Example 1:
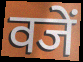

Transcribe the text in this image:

वजें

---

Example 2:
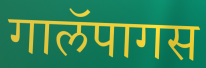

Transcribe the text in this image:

गालॅपागस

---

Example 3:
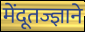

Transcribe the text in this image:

मेंदूतज्ज्ञाने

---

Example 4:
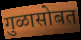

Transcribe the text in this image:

गुळासोबत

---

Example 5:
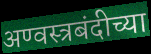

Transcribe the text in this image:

अण्वस्त्रबंदीच्या